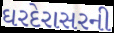
ઘરદેરાસરની